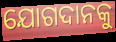
ଯୋଗଦାନକୁ